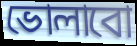
ভোলাবো